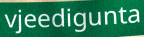
vjeedigunta